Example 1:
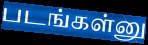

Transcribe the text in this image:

படங்கள்னு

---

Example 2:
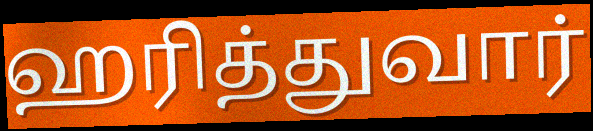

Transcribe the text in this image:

ஹரித்துவார்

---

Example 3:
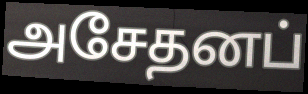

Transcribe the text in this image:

அசேதனப்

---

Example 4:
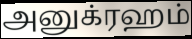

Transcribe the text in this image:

அனுக்ரஹம்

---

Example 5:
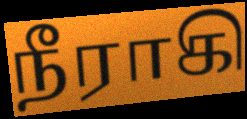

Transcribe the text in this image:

நீராகி